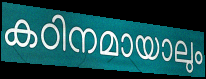
കഠിനമായാലും